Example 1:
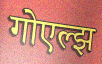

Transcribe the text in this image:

गोएल्झ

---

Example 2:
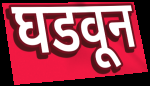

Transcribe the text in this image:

घडवून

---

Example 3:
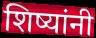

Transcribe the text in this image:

शिष्यांनी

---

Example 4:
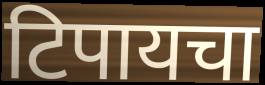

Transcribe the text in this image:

टिपायचा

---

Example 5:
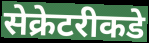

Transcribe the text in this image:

सेक्रेटरीकडे